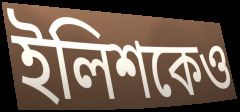
ইলিশকেও